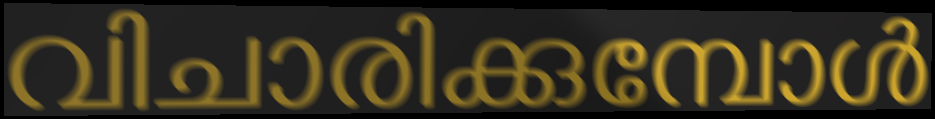
വിചാരിക്കുമ്പോൾ